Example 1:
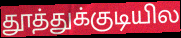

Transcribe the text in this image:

தூத்துக்குடியில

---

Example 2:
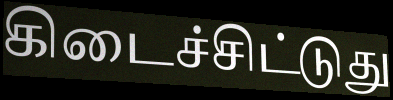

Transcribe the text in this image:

கிடைச்சிட்டுது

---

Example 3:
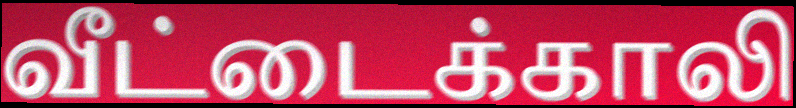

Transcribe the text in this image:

வீட்டைக்காலி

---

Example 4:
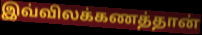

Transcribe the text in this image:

இவ்விலக்கணத்தான்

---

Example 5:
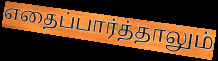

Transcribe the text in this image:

எதைப்பார்த்தாலும்